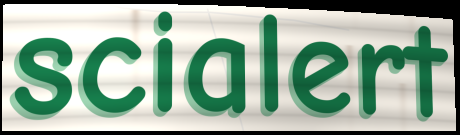
scialert